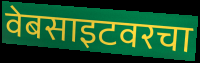
वेबसाइटवरचा